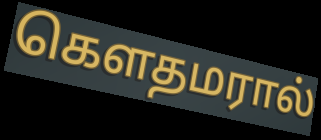
கௌதமரால்